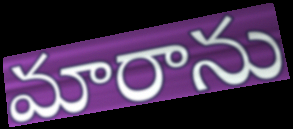
మారాను